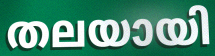
തലയായി